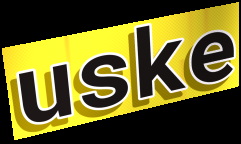
uske